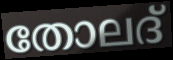
തോലദ്